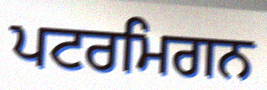
ਪਟਰਮਿਗਨ